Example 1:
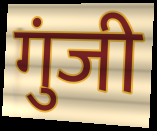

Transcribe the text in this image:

गुंजी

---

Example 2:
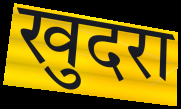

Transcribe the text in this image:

खुदरा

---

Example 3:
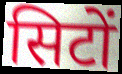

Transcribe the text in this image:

सिटों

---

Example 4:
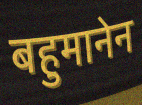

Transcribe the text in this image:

बहुमानेन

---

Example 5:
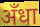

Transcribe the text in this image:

अँधा